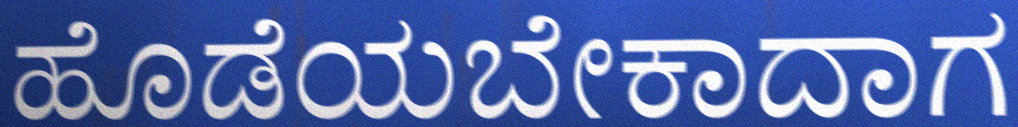
ಹೊಡೆಯಬೇಕಾದಾಗ